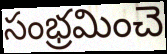
సంభ్రమించె